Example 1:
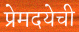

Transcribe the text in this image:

प्रेमदयेची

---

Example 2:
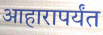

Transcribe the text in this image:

आहारापर्यंत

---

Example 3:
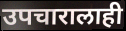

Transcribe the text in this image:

उपचारालाही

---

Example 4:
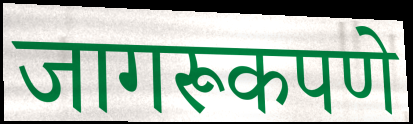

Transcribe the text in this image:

जागरूकपणे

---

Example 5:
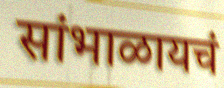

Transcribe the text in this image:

सांभाळायचं